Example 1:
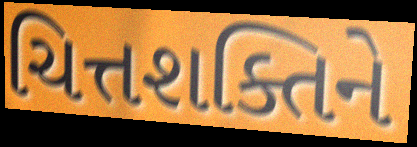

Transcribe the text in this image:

ચિત્તશક્તિને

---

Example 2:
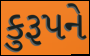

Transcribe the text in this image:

કુરૂપને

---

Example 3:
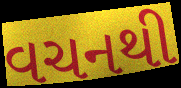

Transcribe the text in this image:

વચનથી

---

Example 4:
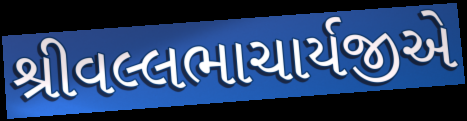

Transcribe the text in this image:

શ્રીવલ્લભાચાર્યજીએ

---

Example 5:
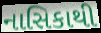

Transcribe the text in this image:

નાસિકાથી